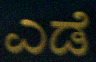
ಎಡೆ